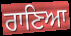
ਰਾਣਿਆ